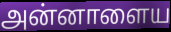
அன்னாளைய